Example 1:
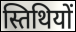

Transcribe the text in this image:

स्तिथियों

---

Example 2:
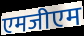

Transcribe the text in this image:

एमजीएम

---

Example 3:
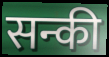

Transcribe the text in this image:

सन्की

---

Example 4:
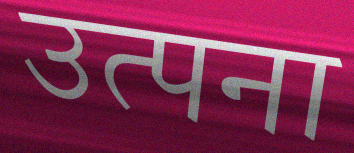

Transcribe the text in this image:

उत्पना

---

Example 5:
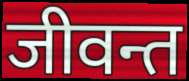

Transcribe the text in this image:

जीवन्त